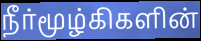
நீர்மூழ்கிகளின்